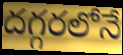
దగ్గరలోనే